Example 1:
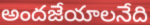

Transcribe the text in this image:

అందజేయాలనేది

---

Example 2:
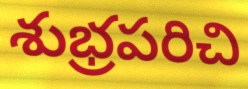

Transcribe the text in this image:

శుభ్రపరిచి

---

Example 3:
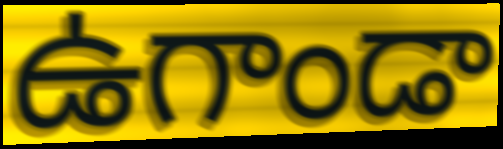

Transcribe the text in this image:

ఉగాండా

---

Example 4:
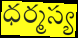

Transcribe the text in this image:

ధర్మస్య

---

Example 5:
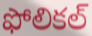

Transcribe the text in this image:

ఫోలికల్